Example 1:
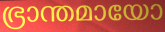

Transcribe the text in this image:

ഭ്രാന്തമായോ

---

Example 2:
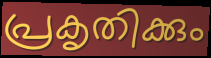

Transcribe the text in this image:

പ്രകൃതിക്കും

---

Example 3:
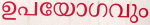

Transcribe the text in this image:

ഉപയോഗവും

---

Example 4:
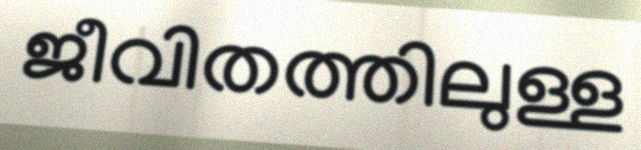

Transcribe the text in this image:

ജീവിതത്തിലുള്ള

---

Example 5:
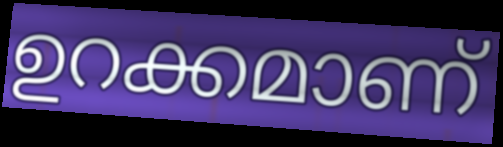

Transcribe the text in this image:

ഉറക്കമാണ്